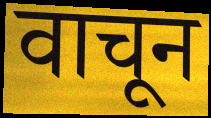
वाचून